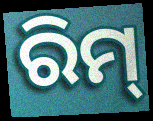
ରିମ୍